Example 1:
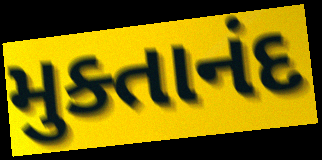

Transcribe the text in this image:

મુક્તાનંદ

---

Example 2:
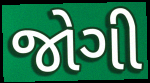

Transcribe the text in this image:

જોગી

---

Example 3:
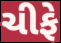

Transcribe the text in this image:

ચીફે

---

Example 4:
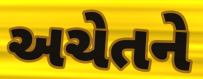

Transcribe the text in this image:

અચેતને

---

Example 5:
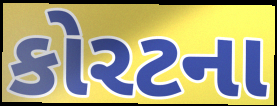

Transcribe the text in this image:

કોરટના